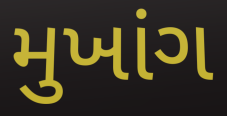
મુખાંગ